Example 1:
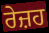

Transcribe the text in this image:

ਰੇਜ਼ਹ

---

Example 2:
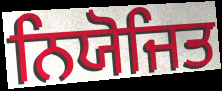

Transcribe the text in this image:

ਨਿਯੋਜਿਤ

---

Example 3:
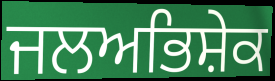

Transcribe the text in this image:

ਜਲਅਭਿਸ਼ੇਕ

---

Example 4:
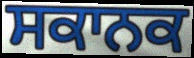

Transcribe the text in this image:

ਸਕਾਨਕ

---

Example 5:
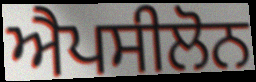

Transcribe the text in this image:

ਐਪਸੀਲੋਨ